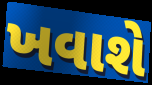
ખવાશે